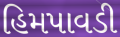
હિમપાવડી